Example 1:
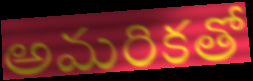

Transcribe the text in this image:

అమరికతో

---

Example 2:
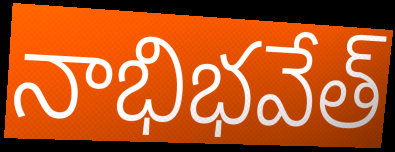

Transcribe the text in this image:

నాభిభవేత్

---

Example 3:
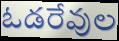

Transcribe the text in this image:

ఓడరేవుల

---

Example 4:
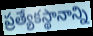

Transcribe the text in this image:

ప్రత్యేకస్థానాన్ని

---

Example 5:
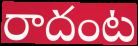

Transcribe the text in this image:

రాదంట